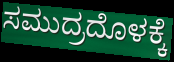
ಸಮುದ್ರದೊಳಕ್ಕೆ